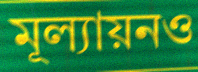
মূল্যায়নও